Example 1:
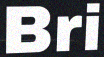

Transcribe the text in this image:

Bri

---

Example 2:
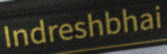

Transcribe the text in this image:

Indreshbhai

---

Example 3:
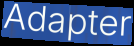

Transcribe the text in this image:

Adapter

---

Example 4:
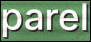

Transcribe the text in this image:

parel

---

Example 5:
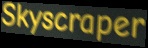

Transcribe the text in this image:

Skyscraper